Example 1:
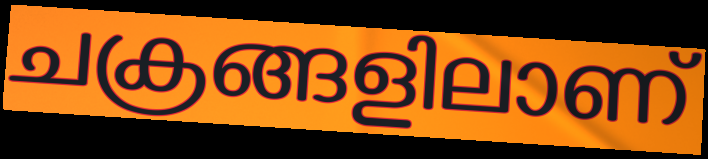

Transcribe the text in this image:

ചക്രങ്ങളിലാണ്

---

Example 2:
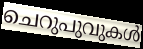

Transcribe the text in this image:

ചെറുപുവുകൾ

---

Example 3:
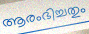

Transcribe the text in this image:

ആരംഭിച്ചതും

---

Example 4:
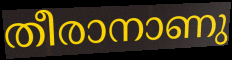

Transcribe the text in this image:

തീരാനാണു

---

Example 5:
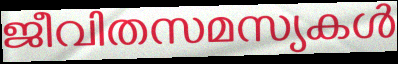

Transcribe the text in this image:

ജീവിതസമസ്യകൾ